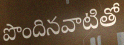
పొందినవాటితో